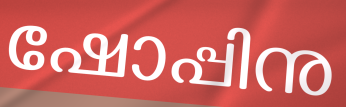
ഷോപ്പിനു